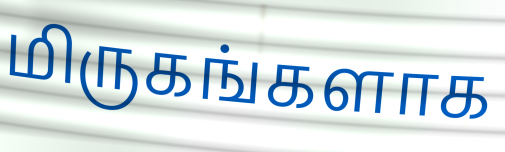
மிருகங்களாக